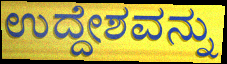
ಉದ್ದೇಶವನ್ನು